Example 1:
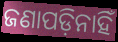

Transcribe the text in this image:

ଜଣାପଡ଼ିନାହିଁ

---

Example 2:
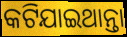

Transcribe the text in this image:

କଟିଯାଇଥାନ୍ତା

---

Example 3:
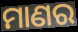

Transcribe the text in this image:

ମାଣର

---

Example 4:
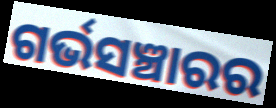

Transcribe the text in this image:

ଗର୍ଭସଞ୍ଚାରର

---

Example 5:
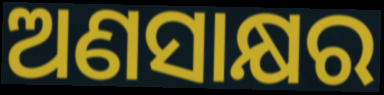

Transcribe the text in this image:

ଅଣସାକ୍ଷର